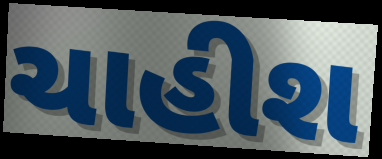
ચાહીશ